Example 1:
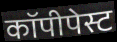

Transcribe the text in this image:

कॉपीपेस्ट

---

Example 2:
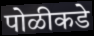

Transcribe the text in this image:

पोळीकडे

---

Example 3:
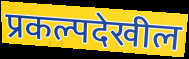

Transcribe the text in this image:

प्रकल्पदेखील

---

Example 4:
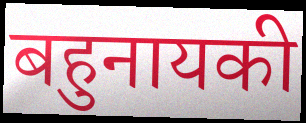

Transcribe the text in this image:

बहुनायकी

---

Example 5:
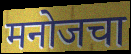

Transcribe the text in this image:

मनोजचा